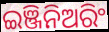
ଇଞ୍ଜିନିଅରିଂ